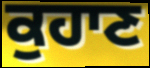
ਕੁਹਾਣ